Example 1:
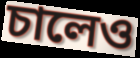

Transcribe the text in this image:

চালেও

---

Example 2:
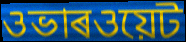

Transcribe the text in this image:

ওভাৰওয়েট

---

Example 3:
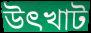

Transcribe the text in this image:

উৎখাট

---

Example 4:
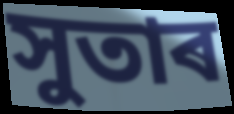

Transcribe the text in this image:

সুতাৰ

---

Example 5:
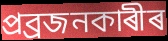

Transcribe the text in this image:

প্ৰব্ৰজনকাৰীৰ